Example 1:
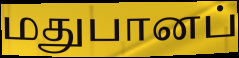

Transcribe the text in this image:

மதுபானப்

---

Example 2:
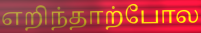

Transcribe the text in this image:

எறிந்தாற்போல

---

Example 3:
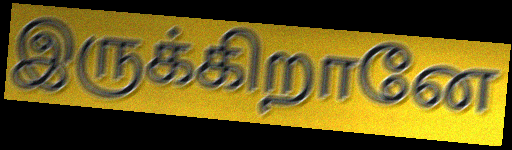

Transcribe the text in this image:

இருக்கிறானே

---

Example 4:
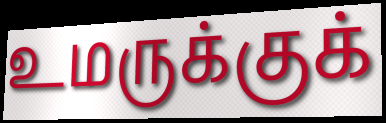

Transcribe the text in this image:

உமருக்குக்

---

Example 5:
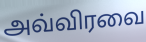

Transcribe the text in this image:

அவ்விரவை